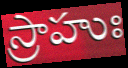
స్రాహుః